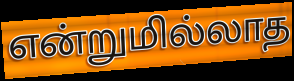
என்றுமில்லாத